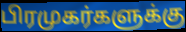
பிரமுகர்களுக்கு